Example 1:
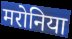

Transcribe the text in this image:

मरोनिया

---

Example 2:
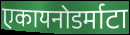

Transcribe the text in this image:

एकायनोडर्माटा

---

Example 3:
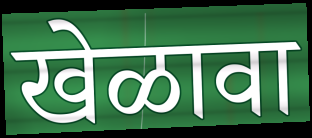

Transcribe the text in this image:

खेळावा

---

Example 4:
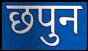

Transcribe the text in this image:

छपुन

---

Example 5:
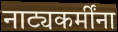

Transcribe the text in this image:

नाट्यकर्मींना